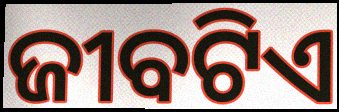
ଜୀବଟିଏ